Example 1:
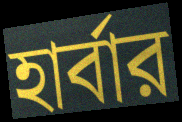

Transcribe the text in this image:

হার্বার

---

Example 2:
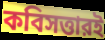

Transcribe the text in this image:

কবিসত্তারই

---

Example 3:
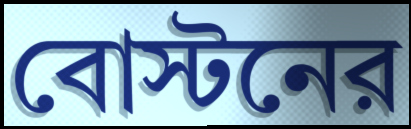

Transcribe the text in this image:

বোস্টনের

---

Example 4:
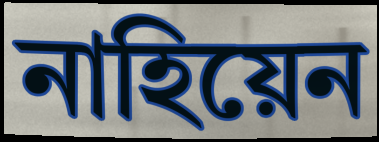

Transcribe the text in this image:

নাহিয়েন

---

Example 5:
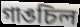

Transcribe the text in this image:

গাঙচিল